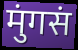
मुंगसं